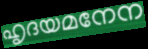
ഹൃദയമനേന